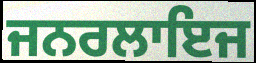
ਜਨਰਲਾਇਜ